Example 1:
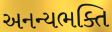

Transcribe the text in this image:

અનન્યભક્તિ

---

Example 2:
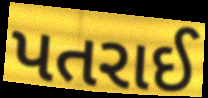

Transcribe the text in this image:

પતરાઈ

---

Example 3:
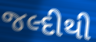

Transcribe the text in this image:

જલ્દીથી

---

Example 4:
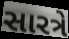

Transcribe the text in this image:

સારત્રે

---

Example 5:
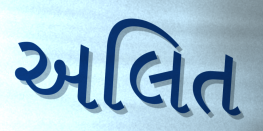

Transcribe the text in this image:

અલિત